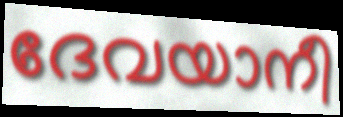
ദേവയാനീ